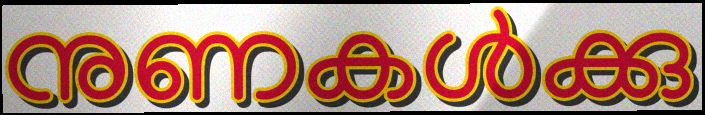
നുണകൾക്കു